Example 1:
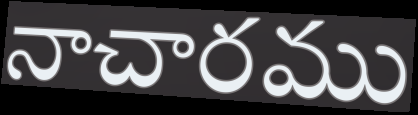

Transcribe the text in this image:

నాచారము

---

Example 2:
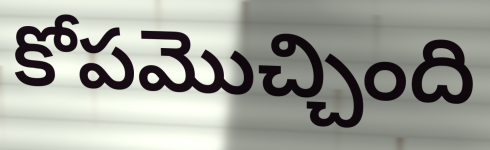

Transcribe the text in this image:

కోపమొచ్చింది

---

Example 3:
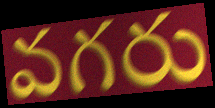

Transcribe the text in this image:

వగరు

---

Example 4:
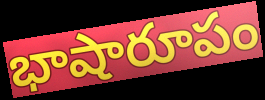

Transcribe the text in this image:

భాషారూపం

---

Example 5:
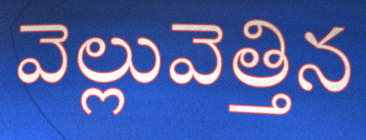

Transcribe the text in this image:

వెల్లువెత్తిన